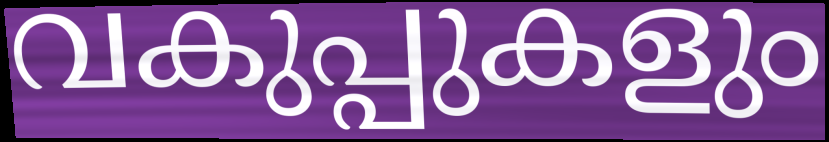
വകുപ്പുകളും